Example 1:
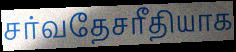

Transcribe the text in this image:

சர்வதேசரீதியாக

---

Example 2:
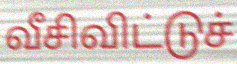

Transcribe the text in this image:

வீசிவிட்டுச்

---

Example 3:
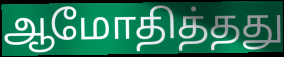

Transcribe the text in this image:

ஆமோதித்தது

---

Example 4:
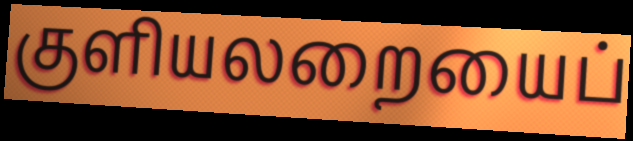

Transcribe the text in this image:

குளியலறையைப்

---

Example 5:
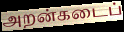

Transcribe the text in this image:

அறன்கடைப்